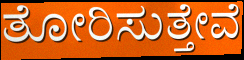
ತೋರಿಸುತ್ತೇವೆ